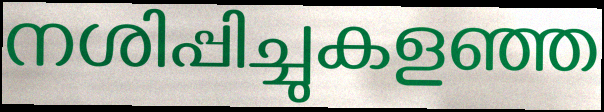
നശിപ്പിച്ചുകളഞ്ഞ